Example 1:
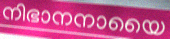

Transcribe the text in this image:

നിഭാനനായൈ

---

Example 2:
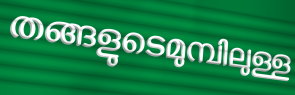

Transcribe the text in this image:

തങ്ങളുടെമുമ്പിലുള്ള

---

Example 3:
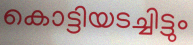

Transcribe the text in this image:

കൊട്ടിയടച്ചിട്ടും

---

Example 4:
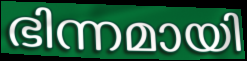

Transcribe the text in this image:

ഭിന്നമായി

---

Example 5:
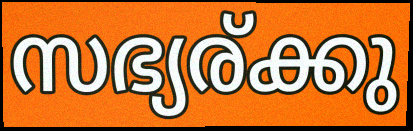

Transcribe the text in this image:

സഭ്യര്ക്കു